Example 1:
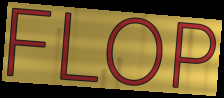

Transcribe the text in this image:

FLOP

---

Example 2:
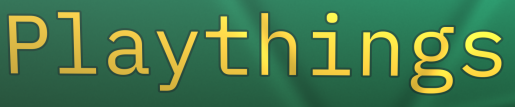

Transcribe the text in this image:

Playthings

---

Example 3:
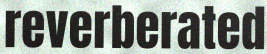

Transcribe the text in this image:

reverberated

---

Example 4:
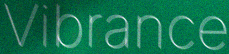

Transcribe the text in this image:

Vibrance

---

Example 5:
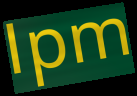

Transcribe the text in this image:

Ipm